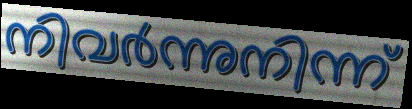
നിവർന്നുനിന്ന്